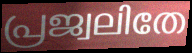
പ്രജ്വലിതേ